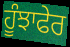
ਹੂੰਝਾਫੇਰ